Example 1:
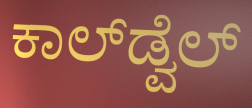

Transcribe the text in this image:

ಕಾಲ್‌ಡ್ವೆಲ್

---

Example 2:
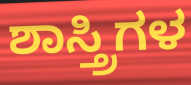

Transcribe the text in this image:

ಶಾಸ್ತ್ರಿಗಳ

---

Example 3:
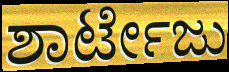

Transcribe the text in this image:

ಶಾರ್ಟೇಜು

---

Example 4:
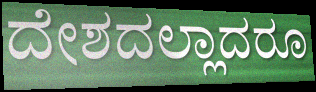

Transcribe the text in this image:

ದೇಶದಲ್ಲಾದರೂ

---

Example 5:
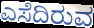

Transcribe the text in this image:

ಎಸೆದಿರುವ